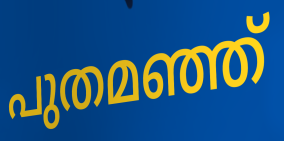
പുതമഞ്ഞ്